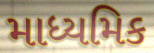
માધ્યમિક